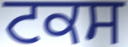
ਟਕਸ